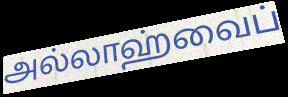
அல்லாஹ்வைப்